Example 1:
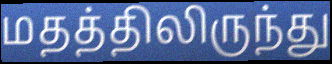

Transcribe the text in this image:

மதத்திலிருந்து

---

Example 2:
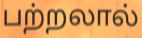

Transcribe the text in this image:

பற்றலால்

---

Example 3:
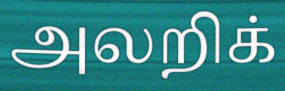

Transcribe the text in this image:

அலறிக்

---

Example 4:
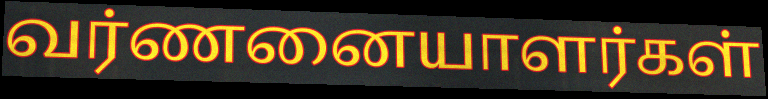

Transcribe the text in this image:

வர்ணனையாளர்கள்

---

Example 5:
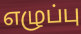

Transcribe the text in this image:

எழுப்பு